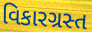
વિકારગ્રસ્ત